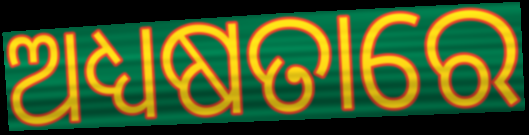
ଅଧ୍ୟଷତାରେ